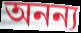
অনন্য